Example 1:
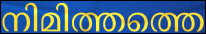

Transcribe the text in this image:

നിമിത്തത്തെ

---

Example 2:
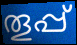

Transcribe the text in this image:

തൂപ്പ്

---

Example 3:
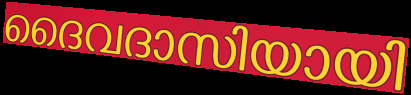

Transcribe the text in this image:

ദൈവദാസിയായി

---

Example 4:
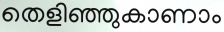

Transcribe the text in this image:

തെളിഞ്ഞുകാണാം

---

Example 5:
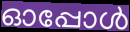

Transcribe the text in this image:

ഓപ്പോൾ